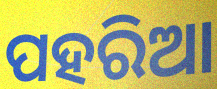
ପହରିଆ